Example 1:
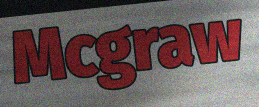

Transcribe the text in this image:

Mcgraw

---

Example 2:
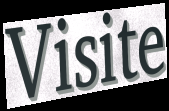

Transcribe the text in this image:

Visite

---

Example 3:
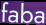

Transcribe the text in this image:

faba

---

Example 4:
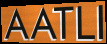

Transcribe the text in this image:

AATLI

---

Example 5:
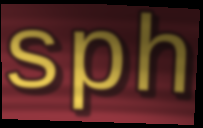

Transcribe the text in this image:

sph